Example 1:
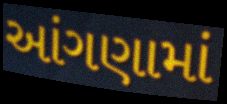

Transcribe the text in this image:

આંગણામાં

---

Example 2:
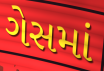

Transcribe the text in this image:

ગેસમાં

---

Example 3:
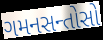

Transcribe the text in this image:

ગમનસન્તોસો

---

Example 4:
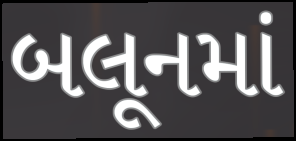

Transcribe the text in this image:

બલૂનમાં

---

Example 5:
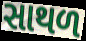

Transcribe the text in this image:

સાથળ